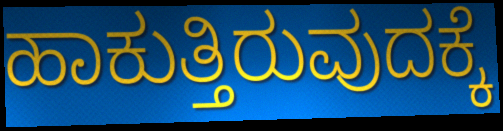
ಹಾಕುತ್ತಿರುವುದಕ್ಕೆ